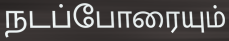
நடப்போரையும்